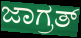
ಜಾಗ್ರತ್